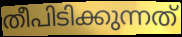
തീപിടിക്കുന്നത്